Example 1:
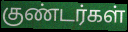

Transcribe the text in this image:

குண்டர்கள்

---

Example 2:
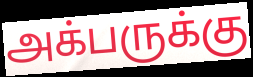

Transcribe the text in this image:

அக்பருக்கு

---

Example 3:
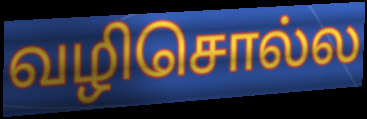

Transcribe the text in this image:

வழிசொல்ல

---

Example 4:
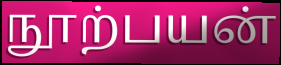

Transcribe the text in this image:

நூற்பயன்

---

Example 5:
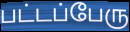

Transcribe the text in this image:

பட்டப்பேரு